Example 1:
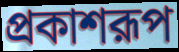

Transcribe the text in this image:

প্রকাশরূপ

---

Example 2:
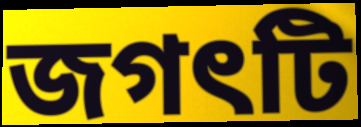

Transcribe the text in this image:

জগৎটি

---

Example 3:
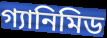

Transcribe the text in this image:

গ্যানিমিড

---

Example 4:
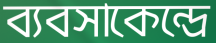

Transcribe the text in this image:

ব্যবসাকেন্দ্রে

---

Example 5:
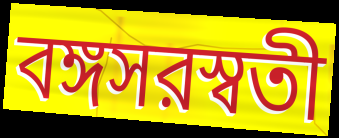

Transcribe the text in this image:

বঙ্গসরস্বতী